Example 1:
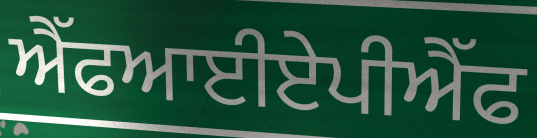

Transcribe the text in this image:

ਐੱਫਆਈਏਪੀਐੱਫ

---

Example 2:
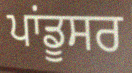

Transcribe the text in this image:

ਪਾਂਡੂਸਰ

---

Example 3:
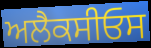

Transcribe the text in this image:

ਅਲੈਕਸੀਓਸ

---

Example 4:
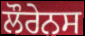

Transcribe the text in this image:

ਲੌਰੇਨਸ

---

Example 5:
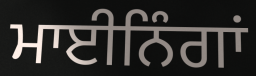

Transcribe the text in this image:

ਮਾਈਨਿੰਗਾਂ